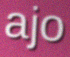
ajo